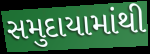
સમુદાયામાંથી